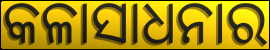
କଳାସାଧନାର